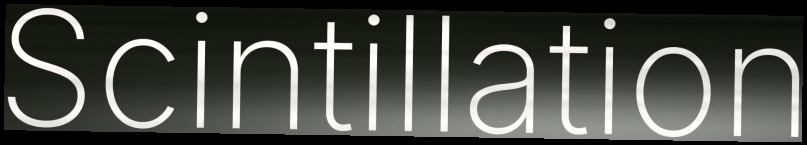
Scintillation